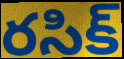
రసిక్